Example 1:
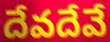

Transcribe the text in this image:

దేవదేవే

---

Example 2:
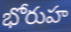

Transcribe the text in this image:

భోరుహ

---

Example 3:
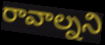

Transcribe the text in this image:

రావాల్నని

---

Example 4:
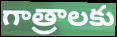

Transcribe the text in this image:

గాత్రాలకు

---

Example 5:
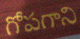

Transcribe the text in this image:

గోపగాని